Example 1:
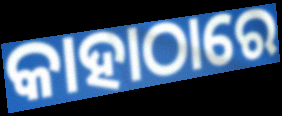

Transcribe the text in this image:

କାହାଠାରେ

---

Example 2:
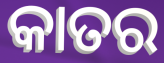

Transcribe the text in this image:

କାତର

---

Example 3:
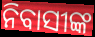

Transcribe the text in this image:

ନିବାସୀଙ୍କ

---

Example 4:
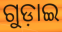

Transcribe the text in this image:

ଗୁଡ଼ାଇ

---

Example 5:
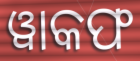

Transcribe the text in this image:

ୱାକଫ